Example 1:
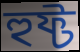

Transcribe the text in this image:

হুফ্ট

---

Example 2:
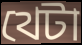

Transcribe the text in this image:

থেটা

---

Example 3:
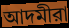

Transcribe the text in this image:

আদমীরা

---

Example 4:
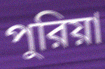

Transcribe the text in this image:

পুরিয়া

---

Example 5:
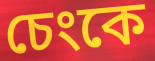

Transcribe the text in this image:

চেংকে